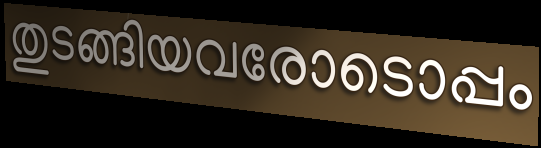
തുടങ്ങിയവരോടൊപ്പം